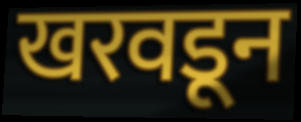
खरवडून